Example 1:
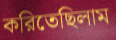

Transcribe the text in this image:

করিতেছিলাম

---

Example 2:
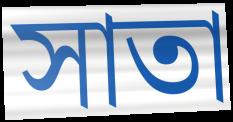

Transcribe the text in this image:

সাতা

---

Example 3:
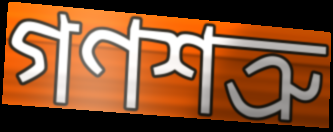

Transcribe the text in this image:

গণশত্রু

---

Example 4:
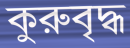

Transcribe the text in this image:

কুরুবৃদ্ধ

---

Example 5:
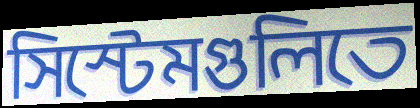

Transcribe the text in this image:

সিস্টেমগুলিতে